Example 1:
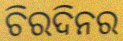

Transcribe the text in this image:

ଚିରଦିନର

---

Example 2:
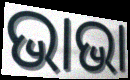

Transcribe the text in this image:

ଭାଭା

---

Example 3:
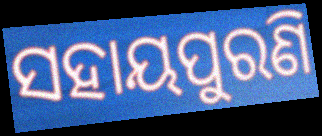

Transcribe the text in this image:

ସହାୟପୁରଣି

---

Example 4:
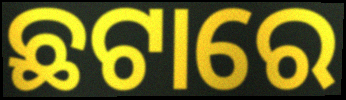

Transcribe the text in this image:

ଛଟାରେ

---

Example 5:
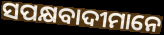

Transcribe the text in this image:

ସପକ୍ଷବାଦୀମାନେ